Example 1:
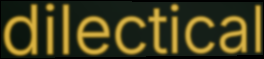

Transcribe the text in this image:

dilectical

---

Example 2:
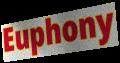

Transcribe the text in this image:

Euphony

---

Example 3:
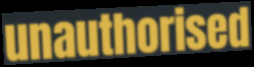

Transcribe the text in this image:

unauthorised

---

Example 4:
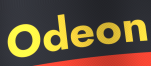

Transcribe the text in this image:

Odeon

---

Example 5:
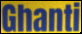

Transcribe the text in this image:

Ghanti